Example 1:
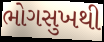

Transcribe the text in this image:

ભોગસુખથી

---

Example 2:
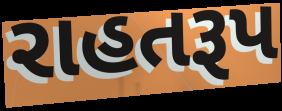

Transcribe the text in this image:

રાહતરૂપ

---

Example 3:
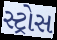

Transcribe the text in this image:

સ્ટ્રોસ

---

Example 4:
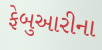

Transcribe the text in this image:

ફેબુઆરીના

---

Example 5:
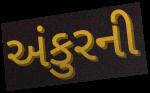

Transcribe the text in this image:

અંકુરની